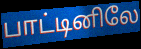
பாட்டினிலே